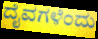
ದೈವಗಳೆಂದು